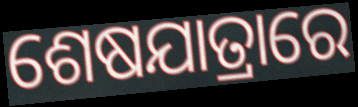
ଶେଷଯାତ୍ରାରେ